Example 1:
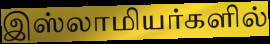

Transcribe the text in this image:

இஸ்லாமியர்களில்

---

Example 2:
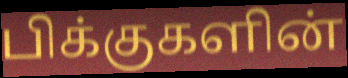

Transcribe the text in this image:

பிக்குகளின்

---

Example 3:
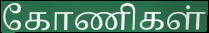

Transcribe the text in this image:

கோணிகள்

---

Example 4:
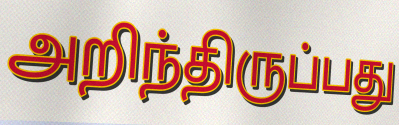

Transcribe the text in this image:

அறிந்திருப்பது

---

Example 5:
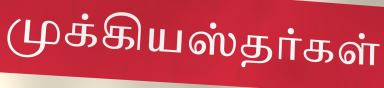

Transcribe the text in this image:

முக்கியஸ்தர்கள்